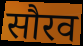
सौरव